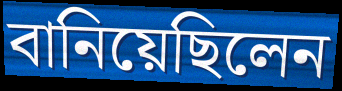
বানিয়েছিলেন